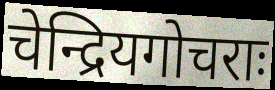
चेन्द्रियगोचराः